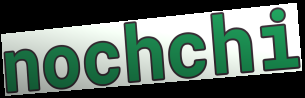
nochchi